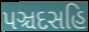
પઞ્ચદસહિ